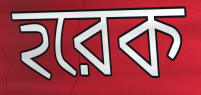
হরেক